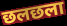
छलछला